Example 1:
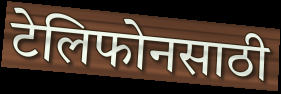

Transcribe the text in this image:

टेलिफोनसाठी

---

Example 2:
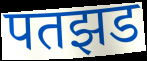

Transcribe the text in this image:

पतझड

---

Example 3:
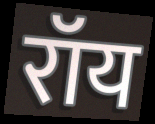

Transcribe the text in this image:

रॉय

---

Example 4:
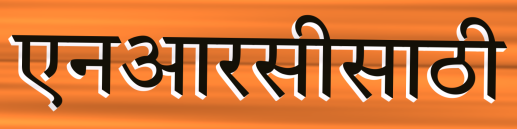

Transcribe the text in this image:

एनआरसीसाठी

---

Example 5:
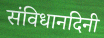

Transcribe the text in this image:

संविधानदिनी